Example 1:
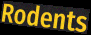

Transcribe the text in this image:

Rodents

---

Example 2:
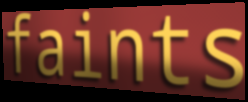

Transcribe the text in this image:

faints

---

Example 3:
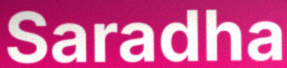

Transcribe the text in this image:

Saradha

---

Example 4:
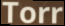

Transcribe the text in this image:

Torr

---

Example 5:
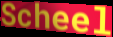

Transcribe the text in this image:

Scheel